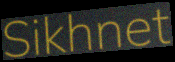
Sikhnet